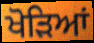
ਖੋੜਿਆਂ